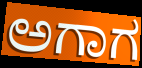
ಅಗಾಗ